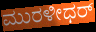
ಮುರಳೀಧರ್